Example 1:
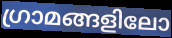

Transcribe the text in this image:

ഗ്രാമങ്ങളിലോ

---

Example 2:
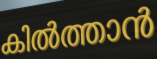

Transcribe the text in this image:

കിൽത്താൻ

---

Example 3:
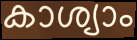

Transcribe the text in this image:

കാശ്യാം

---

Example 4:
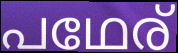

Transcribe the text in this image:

പഥേര്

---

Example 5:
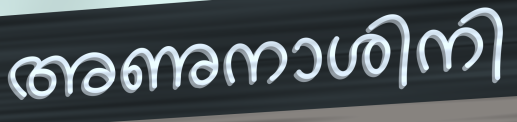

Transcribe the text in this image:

അണുനാശിനി